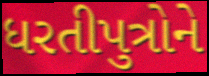
ધરતીપુત્રોને